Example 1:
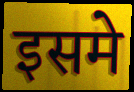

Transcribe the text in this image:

इसमे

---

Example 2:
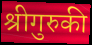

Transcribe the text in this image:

श्रीगुरुकी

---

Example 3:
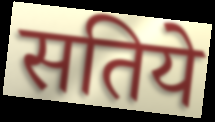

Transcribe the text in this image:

सतिये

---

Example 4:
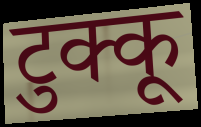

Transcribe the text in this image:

टुक्कू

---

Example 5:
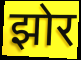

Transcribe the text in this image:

झोर